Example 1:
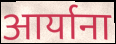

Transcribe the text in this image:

आर्याना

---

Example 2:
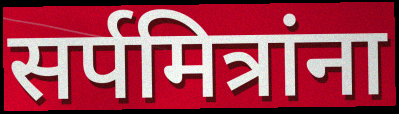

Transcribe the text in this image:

सर्पमित्रांना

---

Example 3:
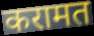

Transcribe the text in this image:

करामत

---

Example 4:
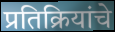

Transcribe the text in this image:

प्रतिक्रियांचे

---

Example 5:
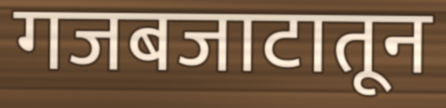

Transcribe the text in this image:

गजबजाटातून